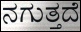
ನಗುತ್ತದೆ